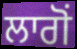
ਲਾਗੋਂ